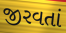
જીરવતાં